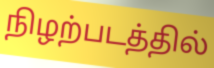
நிழற்படத்தில்